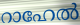
റാഹേൽ